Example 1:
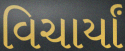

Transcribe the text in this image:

વિચાર્યાં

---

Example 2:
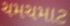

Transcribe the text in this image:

ચમચમાટ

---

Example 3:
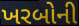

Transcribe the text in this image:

ખરબોની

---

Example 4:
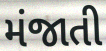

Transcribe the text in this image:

મંજાતી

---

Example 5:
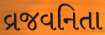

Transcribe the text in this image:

વ્રજવનિતા